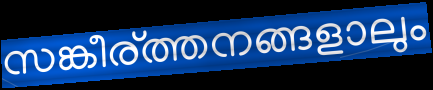
സങ്കീര്ത്തനങ്ങളാലും